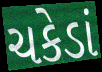
ચકેડાં